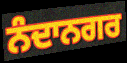
ਨੰਦਾਨਗਰ